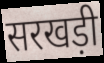
सरखड़ी